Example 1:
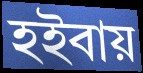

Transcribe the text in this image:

হইবায়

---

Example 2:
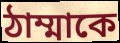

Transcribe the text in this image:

ঠাম্মাকে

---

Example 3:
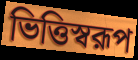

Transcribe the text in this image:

ভিত্তিস্বরূপ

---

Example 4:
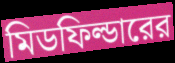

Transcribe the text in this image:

মিডফিল্ডারের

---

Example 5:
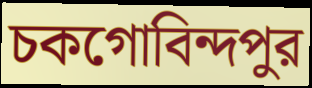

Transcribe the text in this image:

চকগোবিন্দপুর